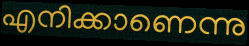
എനിക്കാണെന്നു